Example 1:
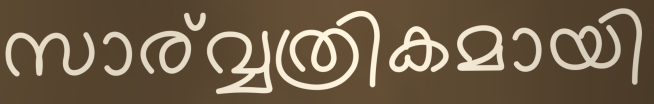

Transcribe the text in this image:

സാര്വ്വത്രികമായി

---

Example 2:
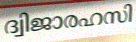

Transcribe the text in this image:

ദ്വിജാരഹസി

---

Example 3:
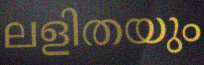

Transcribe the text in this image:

ലളിതയും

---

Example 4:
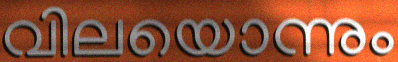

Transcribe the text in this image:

വിലയൊന്നും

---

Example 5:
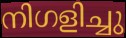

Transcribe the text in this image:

നിഗളിച്ചു